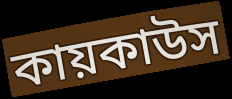
কায়কাউস